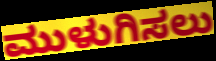
ಮುಳುಗಿಸಲು